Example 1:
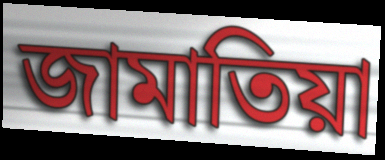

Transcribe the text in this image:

জামাতিয়া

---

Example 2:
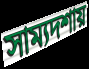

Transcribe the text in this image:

সাম্যদশায়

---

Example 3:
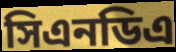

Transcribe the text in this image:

সিএনডিএ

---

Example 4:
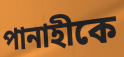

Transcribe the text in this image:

পানাহীকে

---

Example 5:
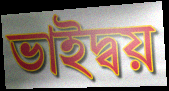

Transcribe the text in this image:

ভাইদ্বয়